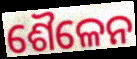
ଶୈଳେନ